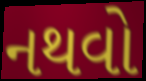
નથવો